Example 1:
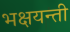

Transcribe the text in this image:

भक्षयन्ती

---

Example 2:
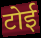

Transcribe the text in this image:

टोई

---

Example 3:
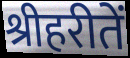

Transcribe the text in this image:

श्रीहरीतें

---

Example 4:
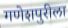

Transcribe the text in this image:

गणेशपुरीला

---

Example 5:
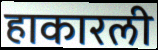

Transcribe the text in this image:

हाकारली